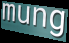
mung